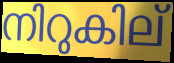
നിറുകില്